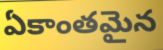
ఏకాంతమైన